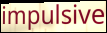
impulsive